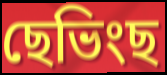
ছেভিংছ